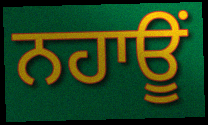
ਨਹਾਊਂ